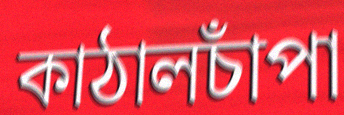
কাঠালচাঁপা